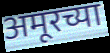
अमूरच्या